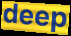
deep